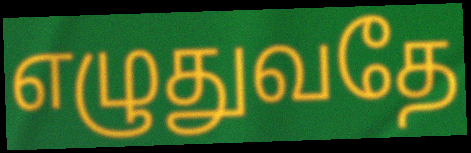
எழுதுவதே